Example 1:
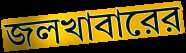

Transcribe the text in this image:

জলখাবারের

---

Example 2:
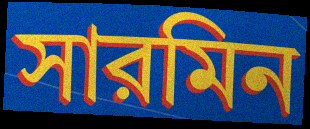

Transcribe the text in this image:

সারমিন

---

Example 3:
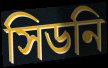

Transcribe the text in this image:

সিডনি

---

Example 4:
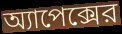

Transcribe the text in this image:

অ্যাপেক্সের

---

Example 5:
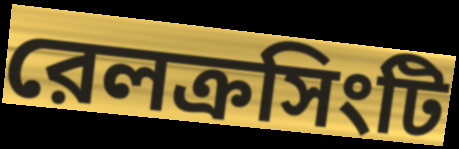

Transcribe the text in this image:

রেলক্রসিংটি